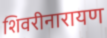
शिवरीनारायण